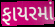
ફાયરમાં